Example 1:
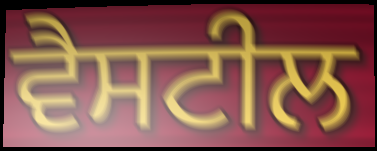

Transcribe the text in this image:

ਵੈਸਟੀਲ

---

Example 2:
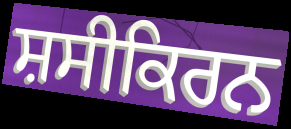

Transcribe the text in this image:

ਸ਼ਸੀਕਿਰਨ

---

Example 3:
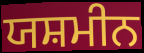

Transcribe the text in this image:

ਯਸ਼ਮੀਨ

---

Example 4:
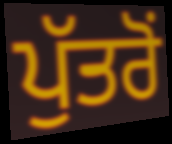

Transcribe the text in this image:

ਪੁੱਤਰੋਂ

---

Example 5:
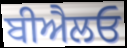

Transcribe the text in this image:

ਬੀਐਲਓ